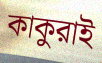
কাকুরাই